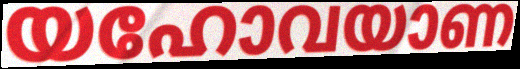
യഹോവയാണ